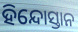
ହିନ୍ଦୋସ୍ତାନ